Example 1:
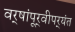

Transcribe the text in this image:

वर्षांपूर्वीपर्यंत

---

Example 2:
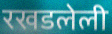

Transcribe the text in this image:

रखडलेली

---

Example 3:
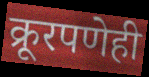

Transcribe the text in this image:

क्रूरपणेही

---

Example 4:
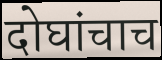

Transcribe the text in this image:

दोघांचाच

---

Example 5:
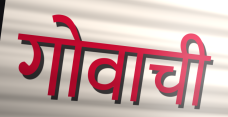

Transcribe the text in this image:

गोवाची